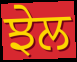
ਝੇਲ